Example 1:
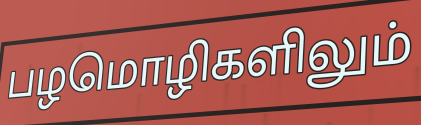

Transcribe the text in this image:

பழமொழிகளிலும்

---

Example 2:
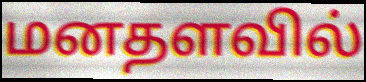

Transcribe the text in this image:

மனதளவில்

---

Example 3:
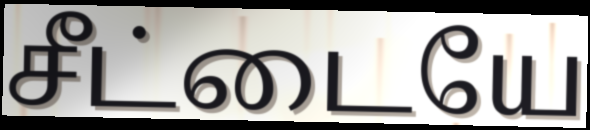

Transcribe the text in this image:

சீட்டையே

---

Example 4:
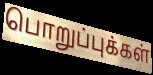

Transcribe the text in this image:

பொறுப்புக்கள்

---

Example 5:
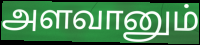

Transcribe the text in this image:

அளவானும்